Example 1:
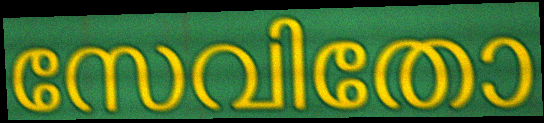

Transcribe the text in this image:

സേവിതോ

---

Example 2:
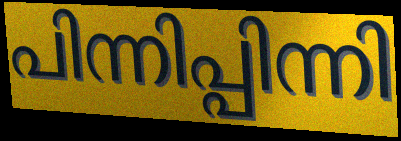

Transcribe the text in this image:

പിന്നിപ്പിന്നി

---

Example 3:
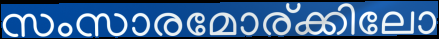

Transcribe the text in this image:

സംസാരമോര്ക്കിലോ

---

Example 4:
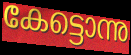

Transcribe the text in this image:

കേട്ടൊന്നു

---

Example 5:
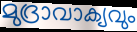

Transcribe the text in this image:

മുദ്രാവാക്യവും